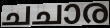
ചചാര